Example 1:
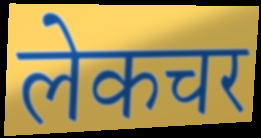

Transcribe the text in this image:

लेकचर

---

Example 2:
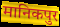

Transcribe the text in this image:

मानिकपुर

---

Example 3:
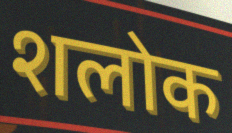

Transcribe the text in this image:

शलोक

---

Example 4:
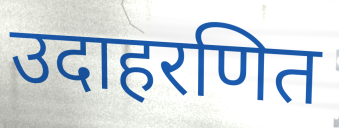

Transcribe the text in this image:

उदाहरणित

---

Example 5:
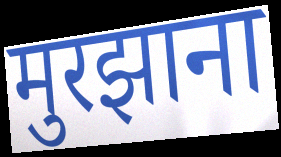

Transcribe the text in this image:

मुरझाना